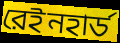
রেইনহার্ড